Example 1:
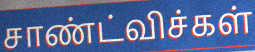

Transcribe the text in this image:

சாண்ட்விச்கள்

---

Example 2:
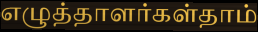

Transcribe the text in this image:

எழுத்தாளர்கள்தாம்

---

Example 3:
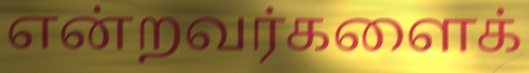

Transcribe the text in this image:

என்றவர்களைக்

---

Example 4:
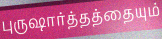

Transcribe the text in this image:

புருஷார்த்தத்தையும்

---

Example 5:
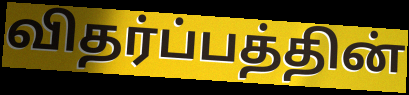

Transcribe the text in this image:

விதர்ப்பத்தின்